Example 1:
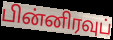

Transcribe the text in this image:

பின்னிரவுப்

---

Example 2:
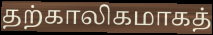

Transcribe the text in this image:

தற்காலிகமாகத்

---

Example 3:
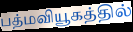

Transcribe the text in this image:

பத்மவியூகத்தில்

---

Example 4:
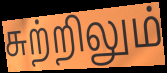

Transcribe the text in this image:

சுற்றிலும்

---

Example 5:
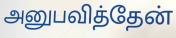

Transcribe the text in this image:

அனுபவித்தேன்